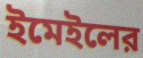
ইমেইলের